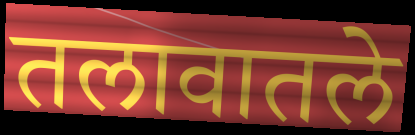
तलावातले